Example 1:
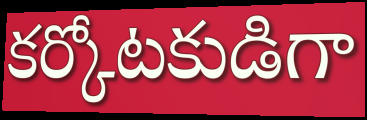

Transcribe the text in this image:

కర్కోటకుడిగా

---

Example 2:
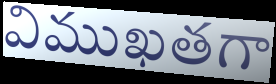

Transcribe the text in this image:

విముఖతగా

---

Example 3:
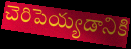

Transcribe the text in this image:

చెరిపెయ్యడానికి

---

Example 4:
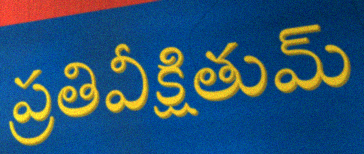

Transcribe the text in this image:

ప్రతివీక్షితుమ్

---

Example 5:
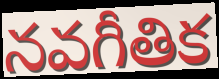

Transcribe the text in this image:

నవగీతిక